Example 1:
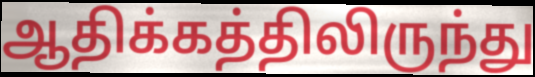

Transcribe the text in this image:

ஆதிக்கத்திலிருந்து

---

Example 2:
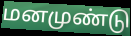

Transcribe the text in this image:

மனமுண்டு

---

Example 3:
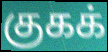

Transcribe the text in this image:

குகக்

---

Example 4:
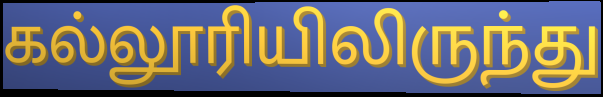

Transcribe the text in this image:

கல்லூரியிலிருந்து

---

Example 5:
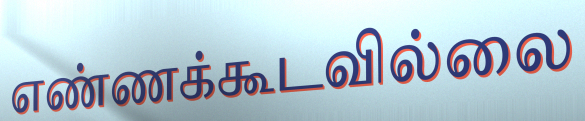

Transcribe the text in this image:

எண்ணக்கூடவில்லை